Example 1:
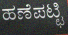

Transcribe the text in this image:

ಹಣೆಪಟ್ಟಿ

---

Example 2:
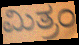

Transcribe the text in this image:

ಮಿತ್ರಂ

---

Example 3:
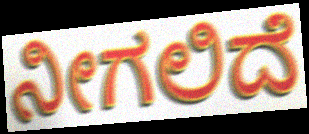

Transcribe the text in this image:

ನೀಗಲಿದೆ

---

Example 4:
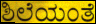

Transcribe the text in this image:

ಶಿಲೆಯಂತೆ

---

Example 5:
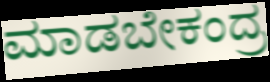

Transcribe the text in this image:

ಮಾಡಬೇಕಂದ್ರ